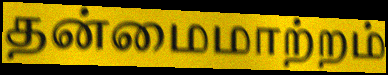
தன்மைமாற்றம்